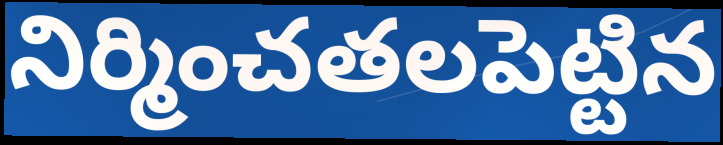
నిర్మించతలపెట్టిన